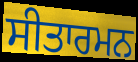
ਸੀਤਾਰਮਨ